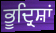
ਭੂਦ੍ਰਿਸ਼ਾਂ